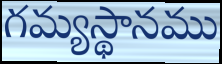
గమ్యస్థానము